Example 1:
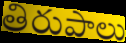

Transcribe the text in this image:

తిరుపాలు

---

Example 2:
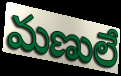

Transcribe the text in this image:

మణులే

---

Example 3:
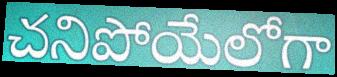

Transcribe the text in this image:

చనిపోయేలోగా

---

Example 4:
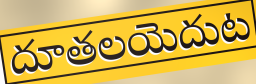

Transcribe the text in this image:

దూతలయెదుట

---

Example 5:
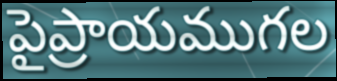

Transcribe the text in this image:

పైప్రాయముగల